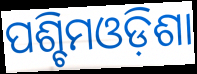
ପଶ୍ଚିମଓଡ଼ିଶା